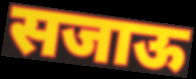
सजाऊ